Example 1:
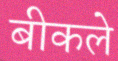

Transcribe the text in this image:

बीकले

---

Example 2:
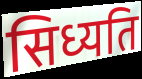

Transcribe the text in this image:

सिध्यति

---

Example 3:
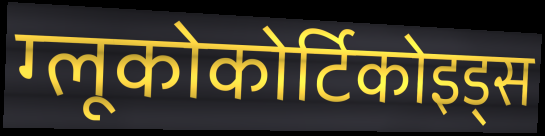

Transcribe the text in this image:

ग्लूकोकोर्टिकोइड्स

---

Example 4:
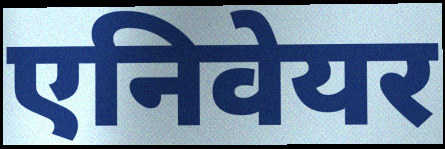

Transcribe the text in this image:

एनिवेयर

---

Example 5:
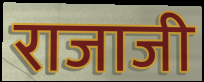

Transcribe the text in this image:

राजाजी